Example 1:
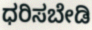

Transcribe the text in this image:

ಧರಿಸಬೇಡಿ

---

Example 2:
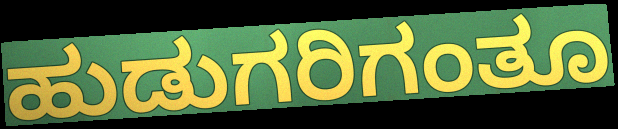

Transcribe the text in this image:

ಹುಡುಗರಿಗಂತೂ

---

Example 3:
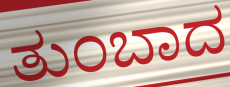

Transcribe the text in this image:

ತುಂಬಾದ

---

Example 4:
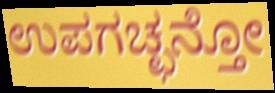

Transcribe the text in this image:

ಉಪಗಚ್ಛನ್ತೋ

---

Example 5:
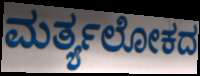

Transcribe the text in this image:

ಮರ್ತ್ಯಲೋಕದ